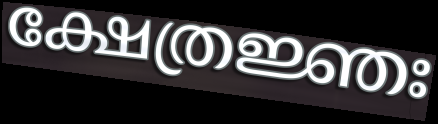
ക്ഷേത്രജ്ഞഃ